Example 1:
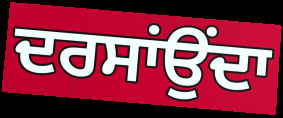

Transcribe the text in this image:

ਦਰਸਾਂਉਂਦਾ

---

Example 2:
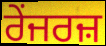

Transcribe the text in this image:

ਰੇਂਜਰਜ਼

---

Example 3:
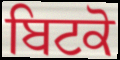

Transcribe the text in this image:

ਬਿਟਕੋ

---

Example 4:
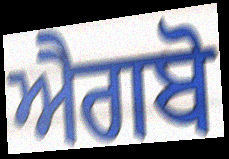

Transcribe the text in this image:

ਐਗਬੋ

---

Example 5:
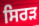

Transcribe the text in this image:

ਸਿਰੜ